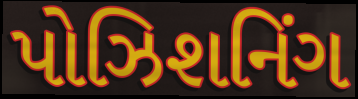
પોઝિશનિંગ